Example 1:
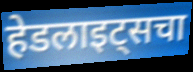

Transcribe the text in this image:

हेडलाइट्सचा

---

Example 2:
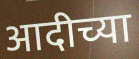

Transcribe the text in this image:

आदीच्या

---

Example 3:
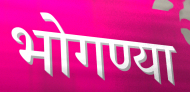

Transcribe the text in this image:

भोगण्या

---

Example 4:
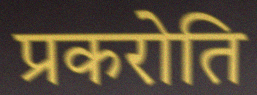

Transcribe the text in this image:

प्रकरोति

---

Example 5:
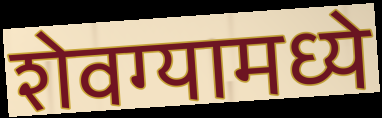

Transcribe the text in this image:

शेवग्यामध्ये